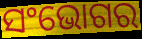
ସଂଭୋଗର